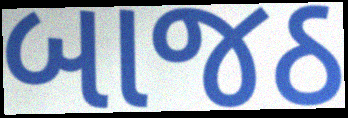
બાજઠ